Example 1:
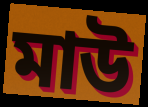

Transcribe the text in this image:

মাউ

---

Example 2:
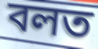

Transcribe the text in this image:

বলত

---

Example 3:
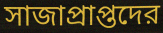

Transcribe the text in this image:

সাজাপ্রাপ্তদের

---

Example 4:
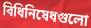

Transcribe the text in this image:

বিধিনিষেধগুলো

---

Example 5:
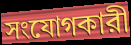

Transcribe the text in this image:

সংযোগকারী